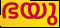
ഭയു